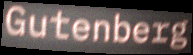
Gutenberg